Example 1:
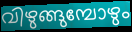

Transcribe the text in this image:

വിഴുങ്ങുമ്പോഴും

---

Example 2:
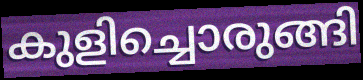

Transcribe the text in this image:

കുളിച്ചൊരുങ്ങി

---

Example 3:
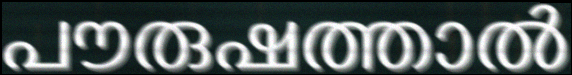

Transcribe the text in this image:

പൗരുഷത്താൽ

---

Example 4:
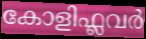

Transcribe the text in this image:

കോളിഫ്ലവർ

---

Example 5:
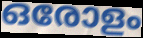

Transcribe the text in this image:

ഒരോളം